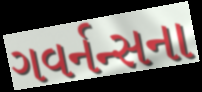
ગવર્નન્સના